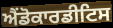
ਐਂਡੋਕਾਰਡੀਟਿਸ